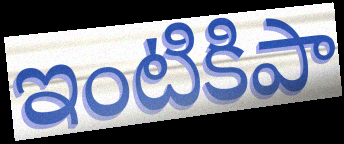
ఇంటికిపా